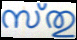
സ്‌തു